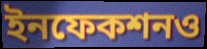
ইনফেকশনও